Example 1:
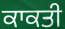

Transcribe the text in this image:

ਕਾਕਤੀ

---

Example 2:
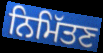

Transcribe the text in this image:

ਨਿਮਿੱਤਣ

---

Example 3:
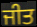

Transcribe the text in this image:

ਜੀਤ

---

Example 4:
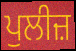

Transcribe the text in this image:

ਪੁਲੀਜ਼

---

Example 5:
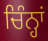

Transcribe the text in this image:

ਚਿੰਨ੍ਹਾਂ